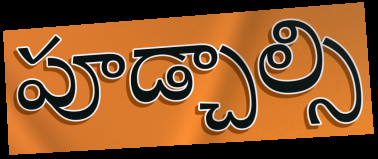
పూడ్చాల్సి